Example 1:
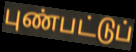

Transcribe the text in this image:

புண்பட்டுப்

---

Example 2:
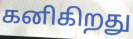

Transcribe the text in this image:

கனிகிறது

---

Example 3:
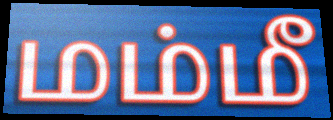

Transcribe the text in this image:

மம்மீ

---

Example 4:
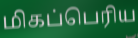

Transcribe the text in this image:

மிகப்பெரிய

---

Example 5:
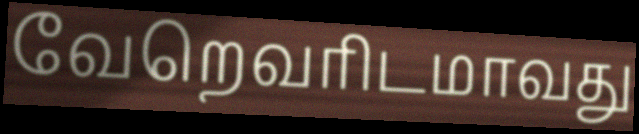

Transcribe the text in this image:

வேறெவரிடமாவது